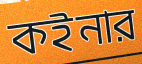
কইনার